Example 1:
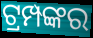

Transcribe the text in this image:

ଟ୍ରମ୍ପଙ୍କର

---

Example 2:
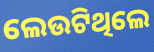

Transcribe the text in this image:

ଲେଉଟିଥିଲେ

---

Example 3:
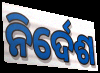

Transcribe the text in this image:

ନିର୍ଦେଶ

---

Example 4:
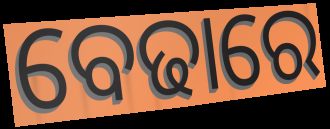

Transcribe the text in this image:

ବେଢାରେ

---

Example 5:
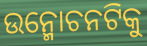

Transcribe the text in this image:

ଉନ୍ମୋଚନଟିକୁ